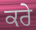
ਕਰੇ